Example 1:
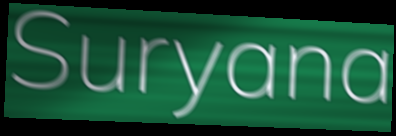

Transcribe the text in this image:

Suryana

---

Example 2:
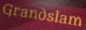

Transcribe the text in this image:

Grandslam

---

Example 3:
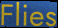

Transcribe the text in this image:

Flies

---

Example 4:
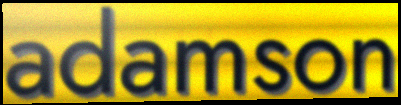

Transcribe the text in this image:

adamson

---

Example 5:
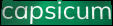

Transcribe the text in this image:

capsicum